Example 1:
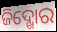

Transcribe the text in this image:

ଜିଦ୍ଖୋର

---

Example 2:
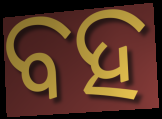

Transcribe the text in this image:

ବହ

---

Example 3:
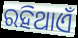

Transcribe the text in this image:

ରହିଥାଏଁ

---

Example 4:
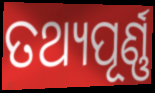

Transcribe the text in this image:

ତଥ୍ୟପୂର୍ଣ୍ଣ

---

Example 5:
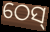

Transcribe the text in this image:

ଠେସ୍